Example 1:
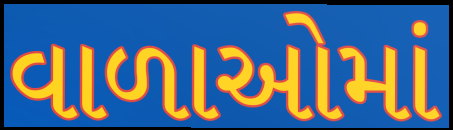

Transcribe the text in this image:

વાળાઓમાં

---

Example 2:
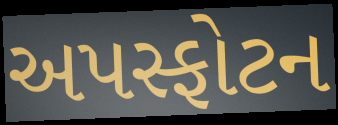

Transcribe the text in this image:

અપસ્ફોટન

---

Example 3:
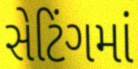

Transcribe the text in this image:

સેટિંગમાં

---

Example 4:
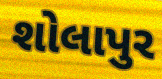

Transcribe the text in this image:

શોલાપુર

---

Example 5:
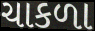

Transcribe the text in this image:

ચાકળા